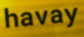
havay